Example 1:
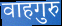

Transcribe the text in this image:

वाहगुरु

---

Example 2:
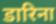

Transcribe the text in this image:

डारिना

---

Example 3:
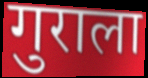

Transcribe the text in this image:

गुराला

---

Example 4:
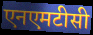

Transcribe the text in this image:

एनएमटीसी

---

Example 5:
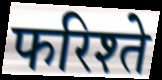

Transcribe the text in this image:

फरिश्ते